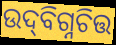
ଉଦ୍‌ବିଗ୍ନଚିତ୍ତ